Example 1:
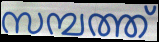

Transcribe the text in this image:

സമ്പത്ത്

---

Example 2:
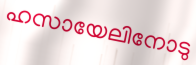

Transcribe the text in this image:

ഹസായേലിനോടു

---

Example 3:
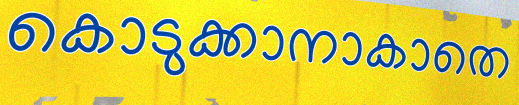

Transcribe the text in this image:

കൊടുക്കാനാകാതെ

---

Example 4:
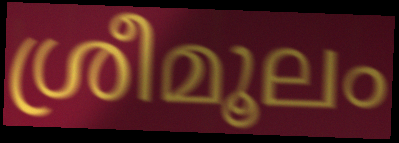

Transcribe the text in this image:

ശ്രീമൂലം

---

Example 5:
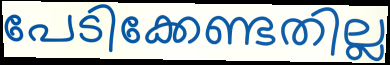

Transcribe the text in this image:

പേടിക്കേണ്ടതില്ല